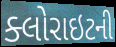
ક્લોરાઇટની